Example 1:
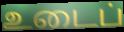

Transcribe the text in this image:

உடைப்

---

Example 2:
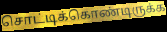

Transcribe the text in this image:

சொட்டிக்கொண்டிருக்க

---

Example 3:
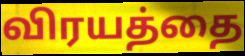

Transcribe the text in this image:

விரயத்தை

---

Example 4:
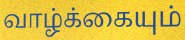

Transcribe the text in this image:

வாழ்க்கையும்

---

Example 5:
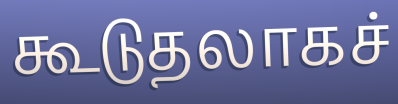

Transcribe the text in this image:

கூடுதலாகச்